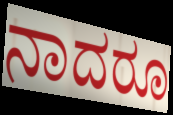
ನಾದರೂ